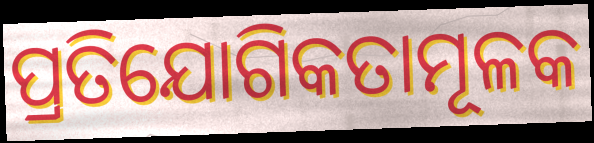
ପ୍ରତିଯୋଗିକତାମୂଳକ